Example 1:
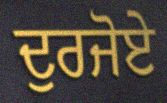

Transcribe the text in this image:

ਦੁਰਜੋਏ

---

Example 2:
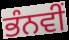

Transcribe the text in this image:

ਭੰਨਵੀਂ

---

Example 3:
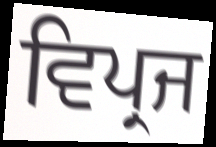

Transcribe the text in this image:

ਵਿਪ੍ਰਜ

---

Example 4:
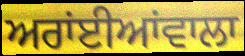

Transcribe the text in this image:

ਅਰਾਂਈਆਂਵਾਲਾ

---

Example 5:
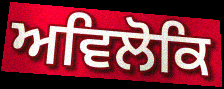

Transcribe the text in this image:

ਅਵਿਲੋਕਿ